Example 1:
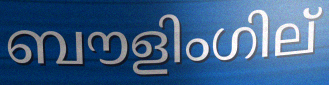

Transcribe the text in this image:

ബൗളിംഗില്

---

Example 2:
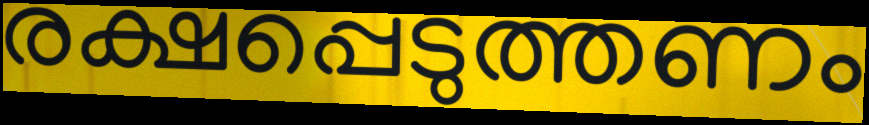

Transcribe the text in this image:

രക്ഷപ്പെടുത്തണം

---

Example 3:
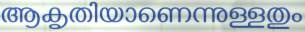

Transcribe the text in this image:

ആകൃതിയാണെന്നുള്ളതും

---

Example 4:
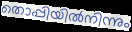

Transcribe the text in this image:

തൊപ്പിയിൽനിന്നും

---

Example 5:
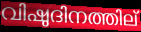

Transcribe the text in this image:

വിഷുദിനത്തില്